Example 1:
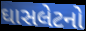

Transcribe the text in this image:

ઘાસલેટનો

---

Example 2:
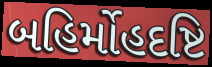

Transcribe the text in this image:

બહિર્મોહદષ્ટિ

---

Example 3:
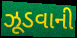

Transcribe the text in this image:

ઝૂડવાની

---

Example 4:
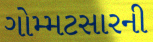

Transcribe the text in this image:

ગોમ્મટસારની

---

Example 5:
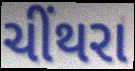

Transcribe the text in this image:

ચીંથરા